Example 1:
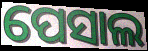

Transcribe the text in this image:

ପେସାଲ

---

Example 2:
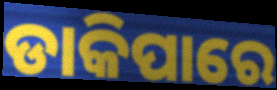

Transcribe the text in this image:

ଡାକିପାରେ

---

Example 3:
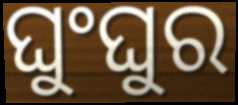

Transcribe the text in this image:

ଘୁଂଘୁର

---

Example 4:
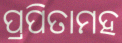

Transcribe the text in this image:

ପ୍ରପିତାମହ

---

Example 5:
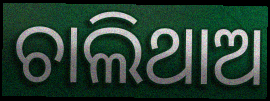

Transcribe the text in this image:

ଚାଲିଥାଅ